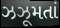
ઝઝૂમતાં